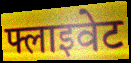
फ्लाइवेट